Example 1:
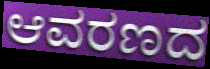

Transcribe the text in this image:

ಆವರಣದ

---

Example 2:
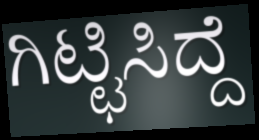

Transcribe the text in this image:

ಗಿಟ್ಟಿಸಿದ್ದೆ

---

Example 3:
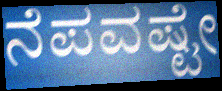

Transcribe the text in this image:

ನೆಪವಷ್ಟೇ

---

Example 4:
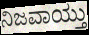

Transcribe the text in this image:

ನಿಜವಾಯ್ತು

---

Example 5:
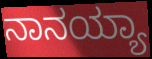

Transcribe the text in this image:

ನಾನಯ್ಯಾ